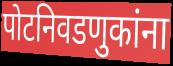
पोटनिवडणुकांना